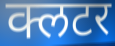
क्लटर